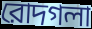
রোদগলা